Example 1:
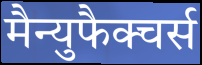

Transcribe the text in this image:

मैन्युफैक्चर्स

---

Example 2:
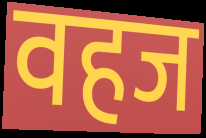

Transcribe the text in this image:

वहज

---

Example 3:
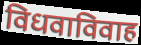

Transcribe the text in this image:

विधवाविवाह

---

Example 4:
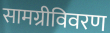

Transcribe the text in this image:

सामग्रीविवरण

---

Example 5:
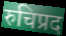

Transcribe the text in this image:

रुचिप्रद